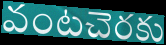
వంటచెరకు